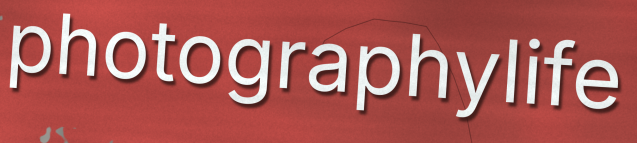
photographylife